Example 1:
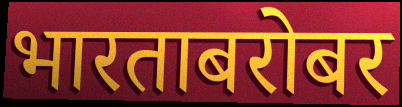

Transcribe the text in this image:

भारताबरोबर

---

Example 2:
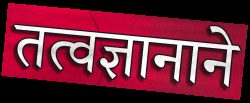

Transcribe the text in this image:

तत्वज्ञानाने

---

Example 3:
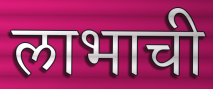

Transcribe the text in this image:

लाभाची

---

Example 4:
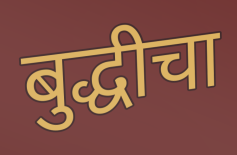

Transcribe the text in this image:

बुद्धीचा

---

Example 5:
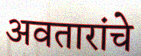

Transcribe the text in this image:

अवतारांचे